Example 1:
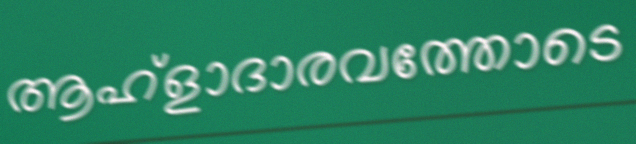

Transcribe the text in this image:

ആഹ്ളാദാരവത്തോടെ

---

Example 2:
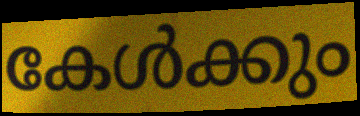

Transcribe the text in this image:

കേൾക്കും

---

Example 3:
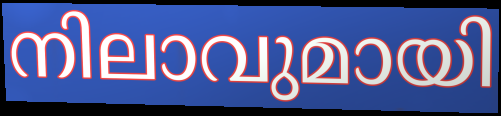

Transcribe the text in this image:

നിലാവുമായി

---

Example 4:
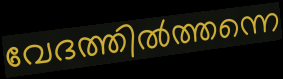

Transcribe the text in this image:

വേദത്തിൽത്തന്നെ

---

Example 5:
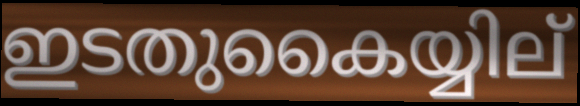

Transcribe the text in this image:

ഇടതുകൈയ്യില്